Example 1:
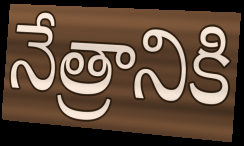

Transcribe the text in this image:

నేత్రానికి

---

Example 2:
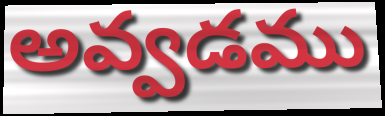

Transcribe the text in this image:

అవ్వడము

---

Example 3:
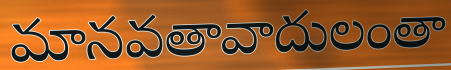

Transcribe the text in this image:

మానవతావాదులంతా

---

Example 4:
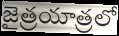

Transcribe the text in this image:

జైత్రయాత్రలో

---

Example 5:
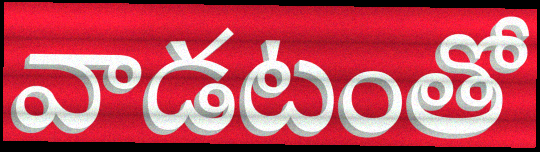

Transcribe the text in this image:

వాడటంతో